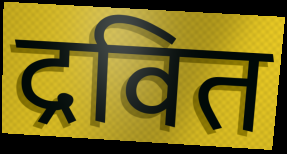
द्रवित